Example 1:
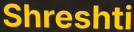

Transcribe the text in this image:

Shreshti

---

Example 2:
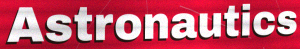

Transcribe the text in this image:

Astronautics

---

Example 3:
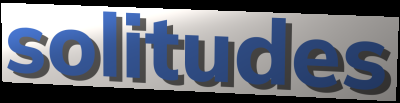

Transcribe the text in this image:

solitudes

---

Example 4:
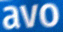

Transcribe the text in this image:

avo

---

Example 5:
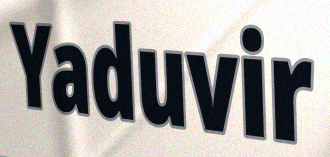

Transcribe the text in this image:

Yaduvir